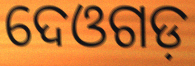
ଦେଓଗଡ଼